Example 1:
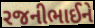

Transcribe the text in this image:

રજનીભાઈને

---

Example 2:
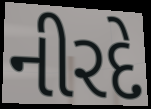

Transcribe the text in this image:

નીરદે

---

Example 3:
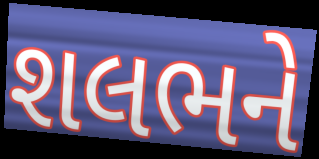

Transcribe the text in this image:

શલભને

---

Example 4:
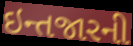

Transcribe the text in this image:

ઇન્તજારની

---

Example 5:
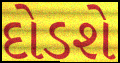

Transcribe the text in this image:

દોડશે